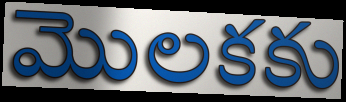
మొలకకు